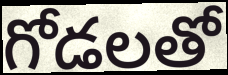
గోడలతో